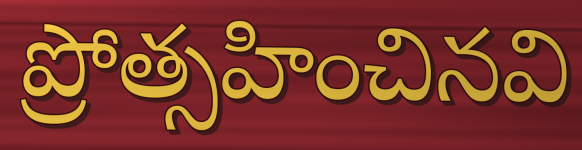
ప్రోత్సహించినవి